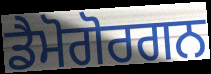
ਡੈਮੋਗੋਰਗਨ